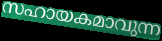
സഹായകമാവുന്ന